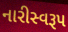
નારીસ્વરૂપ